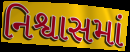
નિશ્વાસમાં